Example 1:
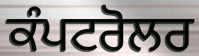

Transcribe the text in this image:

ਕੰਪਟਰੋਲਰ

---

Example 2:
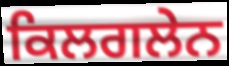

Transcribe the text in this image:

ਕਿਲਗਲੇਨ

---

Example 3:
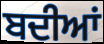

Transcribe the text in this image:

ਬਦੀਆਂ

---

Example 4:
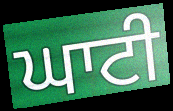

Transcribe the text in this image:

ਘਾਟੀ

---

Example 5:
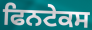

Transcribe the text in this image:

ਫਿਨਟੇਕਸ